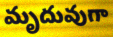
మృదువుగా